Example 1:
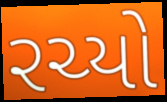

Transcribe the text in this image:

રચ્યો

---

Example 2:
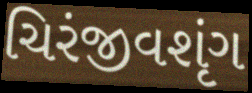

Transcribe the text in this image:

ચિરંજીવશૃંગ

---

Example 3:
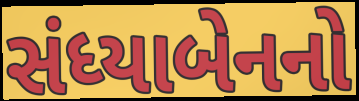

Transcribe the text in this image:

સંધ્યાબેનનો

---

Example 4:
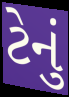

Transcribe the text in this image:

ટેનું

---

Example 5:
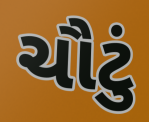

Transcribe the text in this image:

ચૌટું